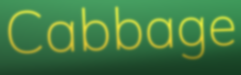
Cabbage